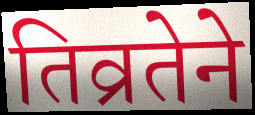
तिव्रतेने